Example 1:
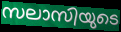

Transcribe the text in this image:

സലാസിയുടെ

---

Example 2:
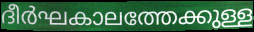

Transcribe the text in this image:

ദീർഘകാലത്തേക്കുള്ള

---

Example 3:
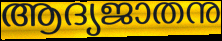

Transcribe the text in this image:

ആദ്യജാതനു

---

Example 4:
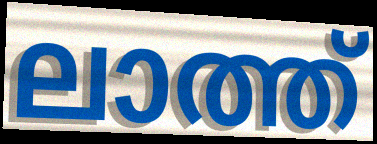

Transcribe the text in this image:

ലാത്ത്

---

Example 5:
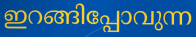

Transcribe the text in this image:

ഇറങ്ങിപ്പോവുന്ന